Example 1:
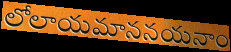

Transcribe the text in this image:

లోలాయమాననయనాం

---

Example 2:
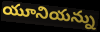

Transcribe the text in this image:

యూనియన్ను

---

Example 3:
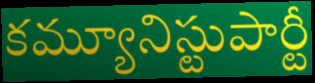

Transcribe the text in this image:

కమ్యూనిస్టుపార్టీ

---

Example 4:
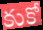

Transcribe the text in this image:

కుకో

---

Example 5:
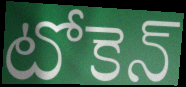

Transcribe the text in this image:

టోకెన్